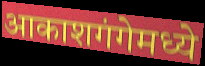
आकाशगंगेमध्ये